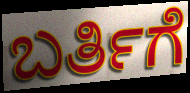
ಬರ್ತಿಗೆ